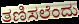
ತಣಿಸಲೆಂದು